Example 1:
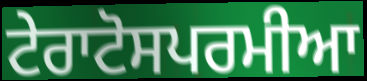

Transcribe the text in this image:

ਟੇਰਾਟੋਸਪਰਮੀਆ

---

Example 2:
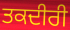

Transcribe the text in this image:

ਤਕਦੀਰੀ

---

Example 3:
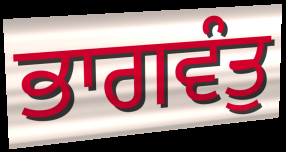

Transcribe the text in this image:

ਭਾਗਵੰਤੁ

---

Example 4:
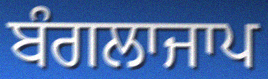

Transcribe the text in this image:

ਬੰਗਲਾਜਾਪ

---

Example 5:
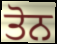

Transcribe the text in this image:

ਤੋਨ